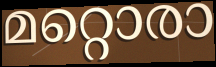
മറ്റൊരാ